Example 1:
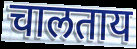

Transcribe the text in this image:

चालताय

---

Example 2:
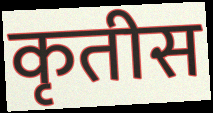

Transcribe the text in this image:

कृतीस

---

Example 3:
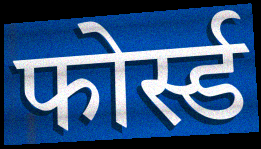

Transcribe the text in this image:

फोर्स्ड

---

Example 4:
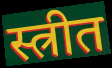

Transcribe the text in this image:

स्त्रीत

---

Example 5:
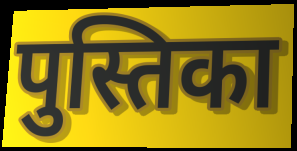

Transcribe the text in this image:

पुस्तिका